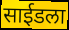
साईडला